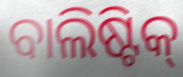
ବାଲିଷ୍ଟିକ୍